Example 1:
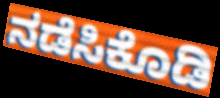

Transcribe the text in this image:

ನಡೆಸಿಕೊಡಿ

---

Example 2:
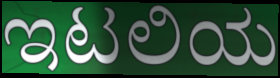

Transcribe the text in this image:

ಇಟಲಿಯ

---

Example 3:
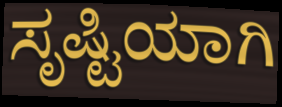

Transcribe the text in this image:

ಸೃಷ್ಟಿಯಾಗಿ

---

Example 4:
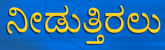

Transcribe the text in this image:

ನೀಡುತ್ತಿರಲು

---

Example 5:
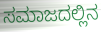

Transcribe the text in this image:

ಸಮಾಜದಲ್ಲಿನ